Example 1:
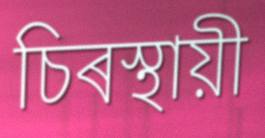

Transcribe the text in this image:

চিৰস্থায়ী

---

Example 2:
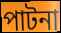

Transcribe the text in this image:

পাটনা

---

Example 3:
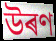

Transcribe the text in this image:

উৰণ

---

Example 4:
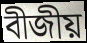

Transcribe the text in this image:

বীজীয়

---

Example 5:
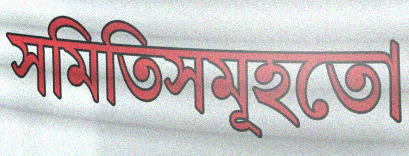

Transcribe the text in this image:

সমিতিসমূহতো